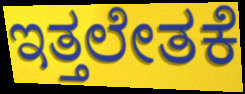
ಇತ್ತಲೇತಕೆ